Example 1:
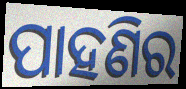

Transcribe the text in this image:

ପାହଣିର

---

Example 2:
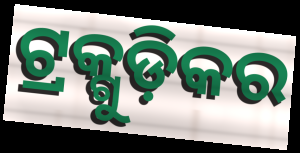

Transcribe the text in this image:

ଟ୍ରକ୍ଗୁଡ଼ିକର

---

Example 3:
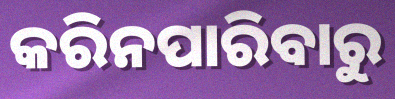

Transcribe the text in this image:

କରିନପାରିବାରୁ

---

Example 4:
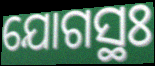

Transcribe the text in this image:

ଯୋଗସ୍ଥଃ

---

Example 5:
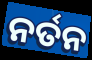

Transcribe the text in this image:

ନର୍ତନ